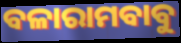
ବଳାରାମବାବୁ